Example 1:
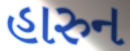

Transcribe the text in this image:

હારુન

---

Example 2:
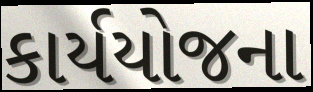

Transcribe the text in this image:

કાર્યયોજના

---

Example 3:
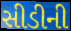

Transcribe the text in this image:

સીડીની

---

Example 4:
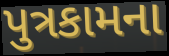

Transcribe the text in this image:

પુત્રકામના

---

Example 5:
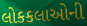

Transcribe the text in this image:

લોકકલાઓની